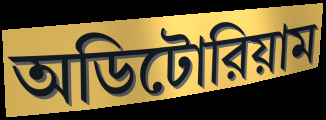
অডিটোরিয়াম